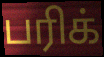
பரிக்